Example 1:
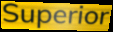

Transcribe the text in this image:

Superior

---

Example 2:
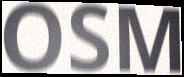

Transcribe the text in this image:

OSM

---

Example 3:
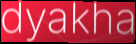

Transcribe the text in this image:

dyakha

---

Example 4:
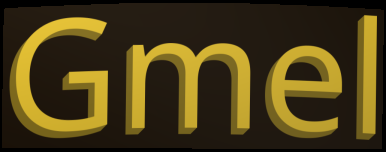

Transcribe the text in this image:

Gmel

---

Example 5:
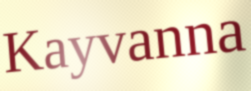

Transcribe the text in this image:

Kayvanna